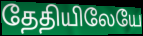
தேதியிலேயே